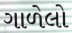
ગાળેલો